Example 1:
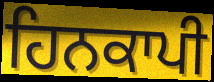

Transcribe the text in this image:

ਹਿਨਕਾਪੀ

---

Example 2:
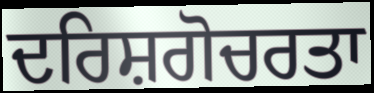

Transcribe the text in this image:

ਦਰਿਸ਼ਗੋਚਰਤਾ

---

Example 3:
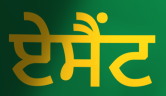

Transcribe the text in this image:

ਏਸੈਂਟ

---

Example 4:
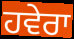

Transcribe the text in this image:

ਹਵੇਰਾ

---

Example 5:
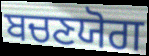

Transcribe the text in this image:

ਬਚਣਯੋਗ